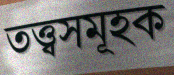
তত্ত্বসমূহক